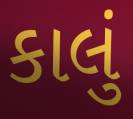
કાલું